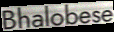
Bhalobese